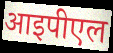
आइपीएल